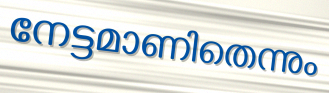
നേട്ടമാണിതെന്നും